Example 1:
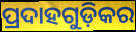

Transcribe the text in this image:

ପ୍ରଦାହଗୁଡ଼ିକର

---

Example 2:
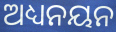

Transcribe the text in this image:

ଅଧ୍ୟନୟନ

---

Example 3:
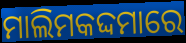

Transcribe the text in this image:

ମାଲିମକଦ୍ଦମାରେ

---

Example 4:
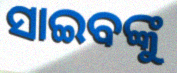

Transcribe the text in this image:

ସାଇବଙ୍କୁ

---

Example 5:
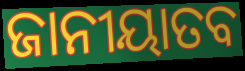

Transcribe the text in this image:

ଜାନୀୟାତବ